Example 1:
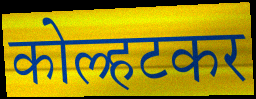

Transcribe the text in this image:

कोल्हटकर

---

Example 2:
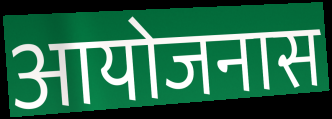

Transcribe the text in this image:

आयोजनास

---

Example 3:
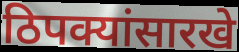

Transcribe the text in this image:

ठिपक्यांसारखे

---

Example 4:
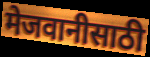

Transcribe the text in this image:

मेजवानीसाठी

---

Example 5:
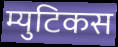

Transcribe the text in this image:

म्युटिकस